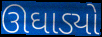
ઊઘાડ્યો